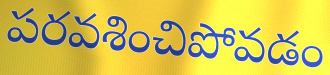
పరవశించిపోవడం